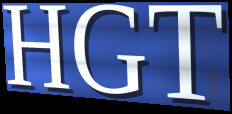
HGT